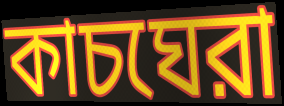
কাচঘেরা